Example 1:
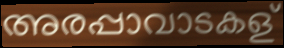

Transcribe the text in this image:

അരപ്പാവാടകള്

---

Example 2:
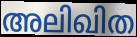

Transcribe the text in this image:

അലിഖിത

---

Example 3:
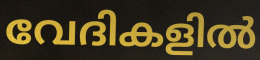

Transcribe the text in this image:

വേദികളിൽ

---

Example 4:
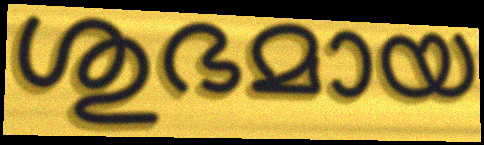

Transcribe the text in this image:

ശുഭമായ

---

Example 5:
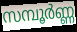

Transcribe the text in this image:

സമ്പൂർണ്ണ